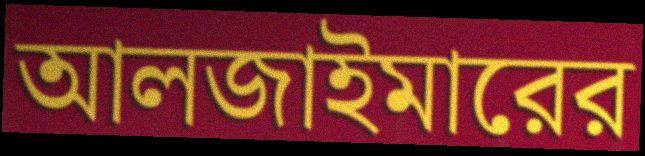
আলজাইমারের